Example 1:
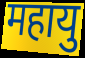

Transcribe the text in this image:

महायु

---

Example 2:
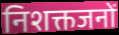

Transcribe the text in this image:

निशक्तजनों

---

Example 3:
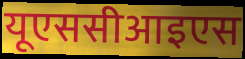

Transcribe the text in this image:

यूएससीआइएस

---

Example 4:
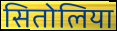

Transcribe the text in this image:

सितोलिया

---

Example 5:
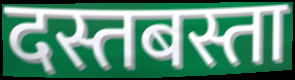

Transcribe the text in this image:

दस्तबस्ता